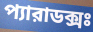
প্যারাডক্সঃ